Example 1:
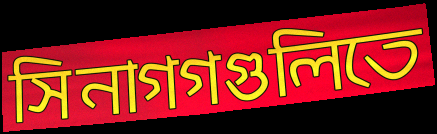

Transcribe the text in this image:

সিনাগগগুলিতে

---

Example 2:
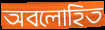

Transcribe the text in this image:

অবলোহিত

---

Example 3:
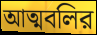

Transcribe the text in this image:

আত্মবলির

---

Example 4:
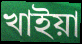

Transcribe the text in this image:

খাইয়া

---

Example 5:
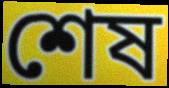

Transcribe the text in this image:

শেষ